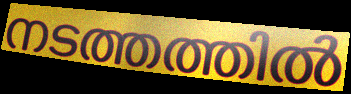
നടത്തത്തിൽ